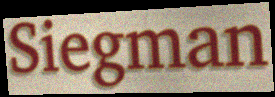
Siegman